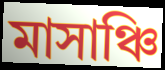
মাসাঞ্চি